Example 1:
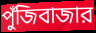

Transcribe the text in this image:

পুঁজিবাজার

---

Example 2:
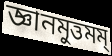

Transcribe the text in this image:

জ্ঞানমুত্তমম্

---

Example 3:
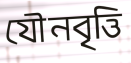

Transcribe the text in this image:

যৌনবৃত্তি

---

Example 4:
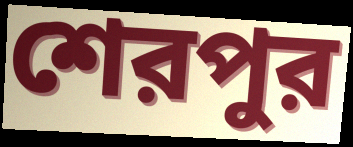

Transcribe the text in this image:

শেরপুর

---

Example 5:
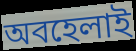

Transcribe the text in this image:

অবহেলাই